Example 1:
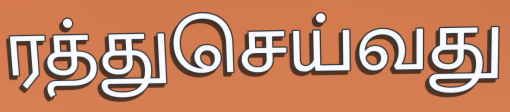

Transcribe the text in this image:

ரத்துசெய்வது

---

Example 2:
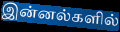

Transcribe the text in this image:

இன்னல்களில்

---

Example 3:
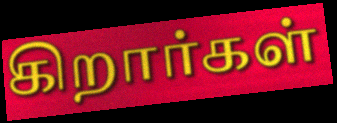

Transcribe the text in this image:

கிறார்கள்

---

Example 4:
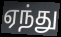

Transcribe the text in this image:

ஏந்து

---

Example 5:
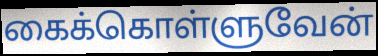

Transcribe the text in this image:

கைக்கொள்ளுவேன்